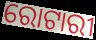
ରୋଟାରୀ